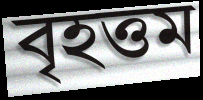
বৃহত্তম